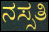
ನಸ್ಸತಿ